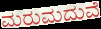
ಮರುಮದುವೆ